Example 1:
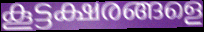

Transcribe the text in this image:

കൂട്ടക്ഷരങ്ങളെ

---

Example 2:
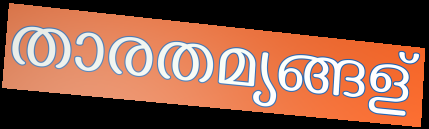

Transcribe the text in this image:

താരതമ്യങ്ങള്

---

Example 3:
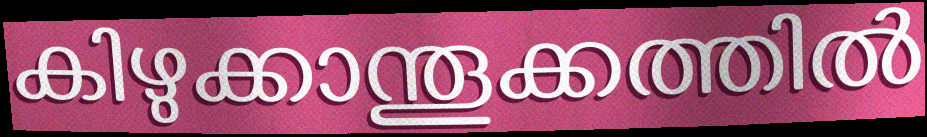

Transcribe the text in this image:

കിഴുക്കാന്തൂക്കത്തിൽ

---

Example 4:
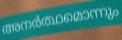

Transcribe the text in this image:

അനർത്ഥമൊന്നും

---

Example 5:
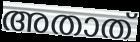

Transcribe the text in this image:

അതാത്